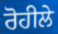
ਰੋਹੀਲੇ